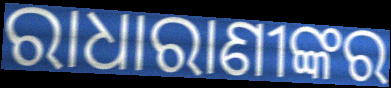
ରାଧାରାଣୀଙ୍କର